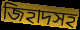
জিহাদসহ